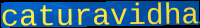
caturavidha